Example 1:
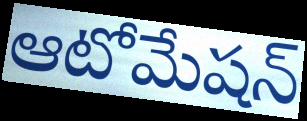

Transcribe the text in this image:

ఆటోమేషన్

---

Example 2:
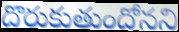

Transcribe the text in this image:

దొరుకుతుందోనని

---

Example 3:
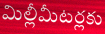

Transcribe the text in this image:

మిల్లీమీటర్లకు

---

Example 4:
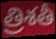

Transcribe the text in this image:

త్రిశతీ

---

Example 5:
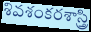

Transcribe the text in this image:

శివశంకరశాస్త్రి